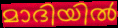
മാദിയിൽ